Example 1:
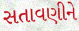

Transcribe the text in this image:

સતાવણીને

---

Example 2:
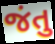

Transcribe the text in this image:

જંતુ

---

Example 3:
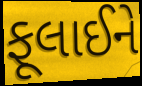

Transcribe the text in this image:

ફૂલાઈને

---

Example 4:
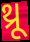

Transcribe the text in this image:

થ્રૂ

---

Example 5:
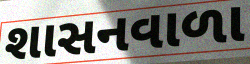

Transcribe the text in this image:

શાસનવાળા